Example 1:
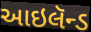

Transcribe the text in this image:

આઇલૅન્ડ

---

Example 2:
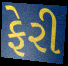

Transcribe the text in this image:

ફેરી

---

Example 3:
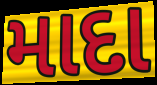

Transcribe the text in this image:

માદા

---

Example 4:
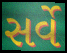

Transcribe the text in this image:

સર્વે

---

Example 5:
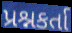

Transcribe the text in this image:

પ્રશ્નકર્તા